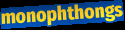
monophthongs